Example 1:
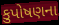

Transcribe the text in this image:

કુપોષણના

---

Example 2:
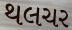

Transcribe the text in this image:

થલચર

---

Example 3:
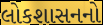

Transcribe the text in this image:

લોકશાસનનો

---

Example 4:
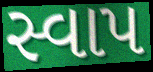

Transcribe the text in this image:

સ્વાપ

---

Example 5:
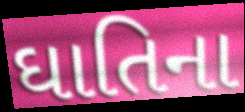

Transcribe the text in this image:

ઘાતિના